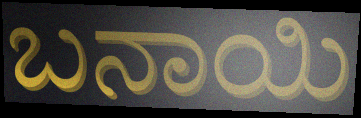
ಬನಾಯಿ